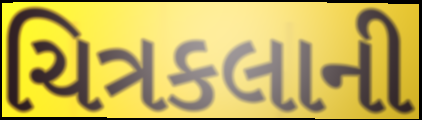
ચિત્રકલાની